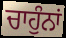
ਚਾਹੁੰਨਾਂ